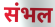
संभल